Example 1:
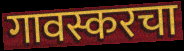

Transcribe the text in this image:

गावस्करचा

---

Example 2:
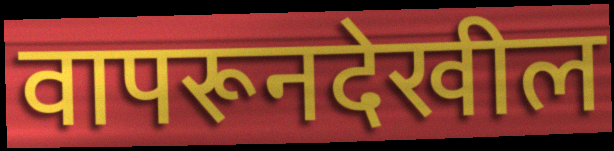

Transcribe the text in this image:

वापरूनदेखील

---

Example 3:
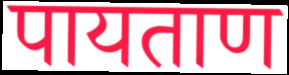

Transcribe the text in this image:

पायताण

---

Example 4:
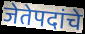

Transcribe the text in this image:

जेतेपदांचे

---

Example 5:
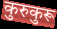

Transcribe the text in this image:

कुरुकुरू